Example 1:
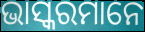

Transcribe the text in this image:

ଭାସ୍କରମାନେ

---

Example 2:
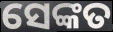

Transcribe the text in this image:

ସେଙ୍କତ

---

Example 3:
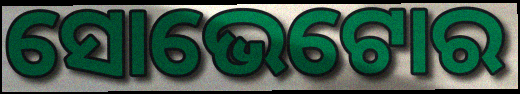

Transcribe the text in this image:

ସୋଭେଟୋର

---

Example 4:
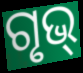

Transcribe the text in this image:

ଗୃଭ୍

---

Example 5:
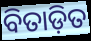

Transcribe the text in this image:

ବିତାଡ଼ିତ